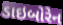
ડાઇબોરેન